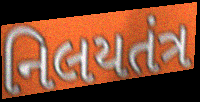
નિલયતંત્ર